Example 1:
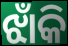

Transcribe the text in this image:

ଝାଁକି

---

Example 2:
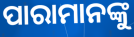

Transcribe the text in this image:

ପାରାମାନଙ୍କୁ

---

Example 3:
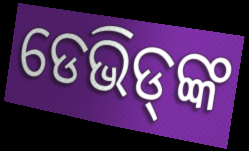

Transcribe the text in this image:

ଡେଭିଡ୍‌ଙ୍କ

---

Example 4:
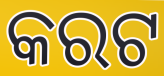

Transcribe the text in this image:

କରଟ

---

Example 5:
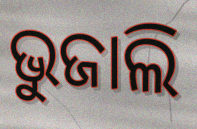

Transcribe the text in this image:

ଭୁଜାଲି